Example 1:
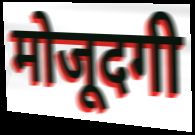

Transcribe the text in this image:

मोजूदगी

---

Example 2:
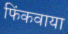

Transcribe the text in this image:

फिंकवाया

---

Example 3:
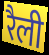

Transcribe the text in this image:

रैली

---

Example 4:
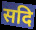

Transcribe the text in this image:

सदि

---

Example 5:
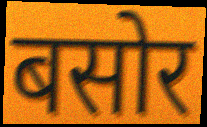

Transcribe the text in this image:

बसोर